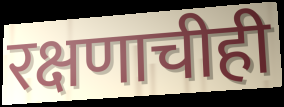
रक्षणाचीही